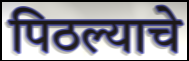
पिठल्याचे